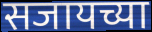
सजायच्या